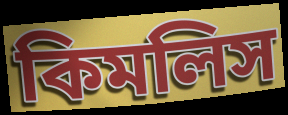
কিমলিস